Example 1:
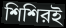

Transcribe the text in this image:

শিশিরই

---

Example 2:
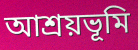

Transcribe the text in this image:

আশ্রয়ভূমি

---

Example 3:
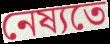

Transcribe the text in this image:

নেষ্যতে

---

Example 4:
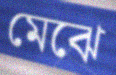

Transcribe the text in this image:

মেঝে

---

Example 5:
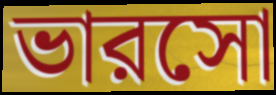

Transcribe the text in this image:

ভারসো